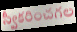
స్వీకరించగల